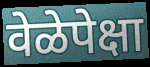
वेळेपेक्षा